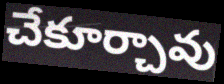
చేకూర్చావు